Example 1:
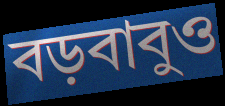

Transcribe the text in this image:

বড়বাবুও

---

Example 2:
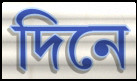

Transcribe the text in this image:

দিনে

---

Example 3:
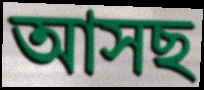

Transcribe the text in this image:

আসছ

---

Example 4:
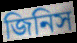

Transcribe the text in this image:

জিনিস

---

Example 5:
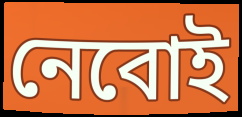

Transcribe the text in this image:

নেবোই